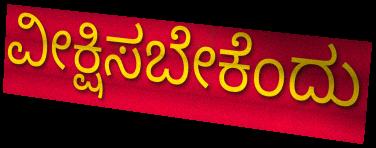
ವೀಕ್ಷಿಸಬೇಕೆಂದು